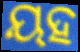
ୟହ